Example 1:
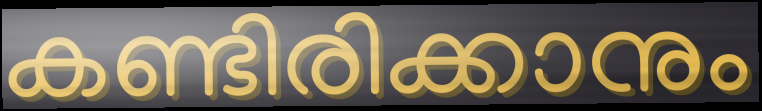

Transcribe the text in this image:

കണ്ടിരിക്കാനും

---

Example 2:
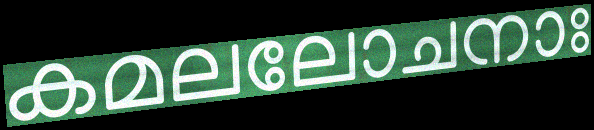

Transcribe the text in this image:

കമലലോചനാഃ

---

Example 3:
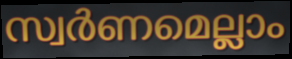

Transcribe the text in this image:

സ്വർണമെല്ലാം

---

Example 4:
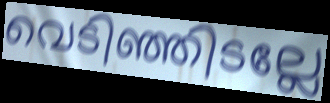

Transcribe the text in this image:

വെടിഞ്ഞിടല്ലേ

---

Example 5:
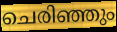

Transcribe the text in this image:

ചെരിഞ്ഞും